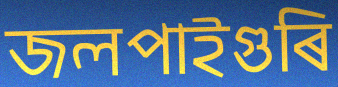
জলপাইগুৰি